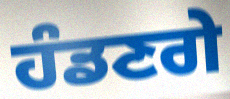
ਹੰਡਣਗੇ